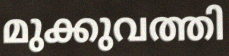
മുക്കുവത്തി